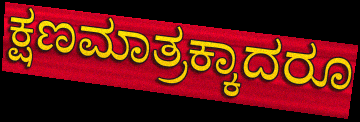
ಕ್ಷಣಮಾತ್ರಕ್ಕಾದರೂ